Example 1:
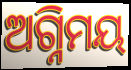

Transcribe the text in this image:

ଅଗ୍ନିମୟ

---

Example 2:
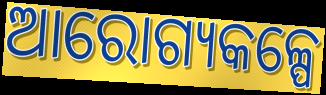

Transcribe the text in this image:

ଆରୋଗ୍ୟକଳ୍ପେ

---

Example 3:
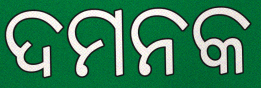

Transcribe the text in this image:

ଦମନକ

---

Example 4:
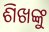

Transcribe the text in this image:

ଶିଖଙ୍କୁ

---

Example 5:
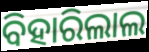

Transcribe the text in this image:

ବିହାରିଲାଲ